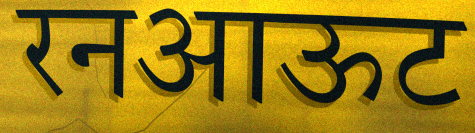
रनआऊट